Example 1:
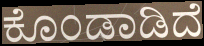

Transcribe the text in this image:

ಕೊಂಡಾಡಿದೆ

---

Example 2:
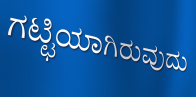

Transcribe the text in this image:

ಗಟ್ಟಿಯಾಗಿರುವುದು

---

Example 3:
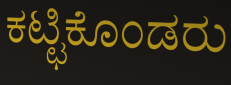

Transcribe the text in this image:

ಕಟ್ಟಿಕೊಂಡರು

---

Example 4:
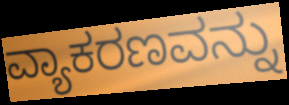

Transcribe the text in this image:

ವ್ಯಾಕರಣವನ್ನು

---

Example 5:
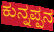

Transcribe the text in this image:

ಕುನ್ನಪ್ಪನ